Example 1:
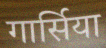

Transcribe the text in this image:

गार्सिया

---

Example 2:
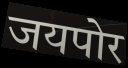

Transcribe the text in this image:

जयपोर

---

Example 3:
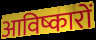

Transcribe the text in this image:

आविष्‍कारों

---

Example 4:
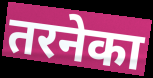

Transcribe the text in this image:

तरनेका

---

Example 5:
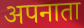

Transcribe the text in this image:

अपनाता